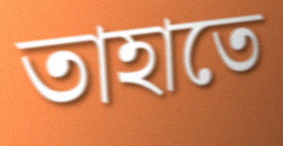
তাহাতে